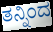
ತನ್ನಿಂದ